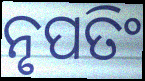
ନୃପତିଂ